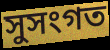
সুসংগত